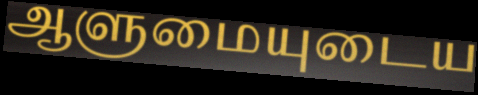
ஆளுமையுடைய